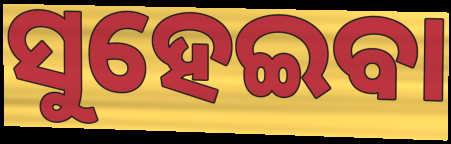
ସୁହେଇବା